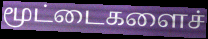
மூட்டைகளைச்